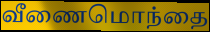
வீணைமொந்தை